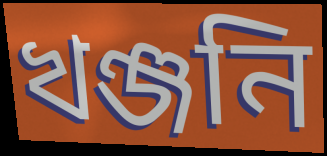
খঞ্জনি